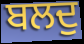
ਬਲਦੁ